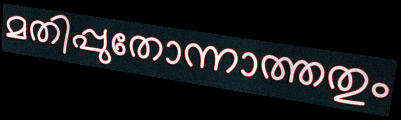
മതിപ്പുതോന്നാത്തതും